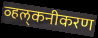
व्हल्कनीकरण